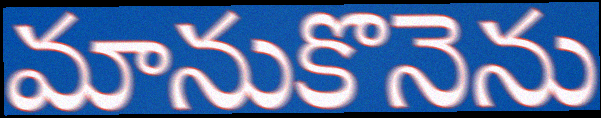
మానుకొనెను